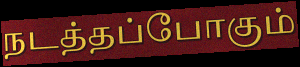
நடத்தப்போகும்